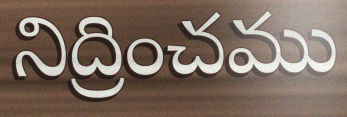
నిద్రించము